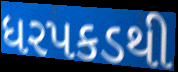
ધરપકડથી